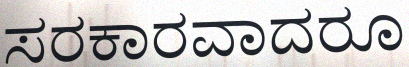
ಸರಕಾರವಾದರೂ